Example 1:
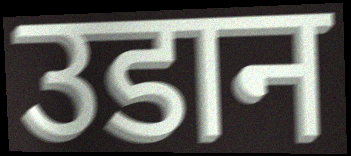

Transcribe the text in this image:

उडान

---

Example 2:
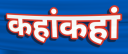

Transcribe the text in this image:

कहांकहां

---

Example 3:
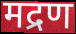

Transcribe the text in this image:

मद्रण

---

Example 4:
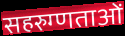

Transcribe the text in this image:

सहरुग्णताओं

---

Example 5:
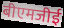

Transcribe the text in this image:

बीएमजीई